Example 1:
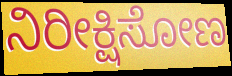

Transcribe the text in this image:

ನಿರೀಕ್ಷಿಸೋಣ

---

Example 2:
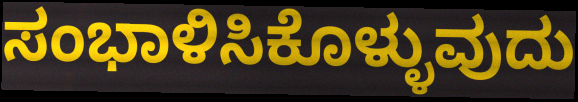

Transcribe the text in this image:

ಸಂಭಾಳಿಸಿಕೊಳ್ಳುವುದು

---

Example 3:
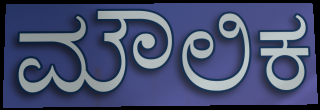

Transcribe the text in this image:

ಮೌಲಿಕ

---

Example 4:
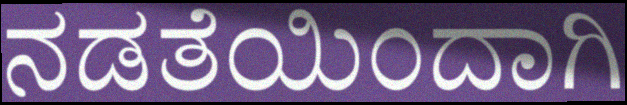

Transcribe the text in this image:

ನಡತೆಯಿಂದಾಗಿ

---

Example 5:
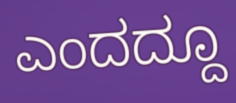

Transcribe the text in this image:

ಎಂದದ್ದೂ